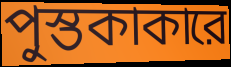
পুস্তকাকারে